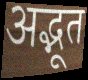
अद्भूत